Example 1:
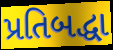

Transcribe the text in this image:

પ્રતિબદ્ધા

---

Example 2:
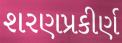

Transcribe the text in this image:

શરણપ્રકીર્ણ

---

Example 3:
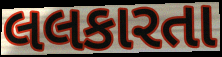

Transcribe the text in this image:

લલકારતા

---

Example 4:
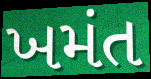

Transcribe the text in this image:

ખમંત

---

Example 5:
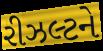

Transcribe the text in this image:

રીઝલ્ટને